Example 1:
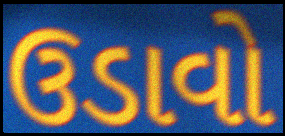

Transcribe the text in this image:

ઉડાવો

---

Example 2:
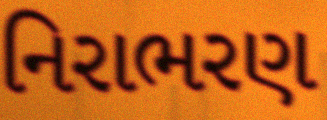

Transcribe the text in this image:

નિરાભરણ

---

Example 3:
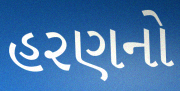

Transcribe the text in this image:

હરણનો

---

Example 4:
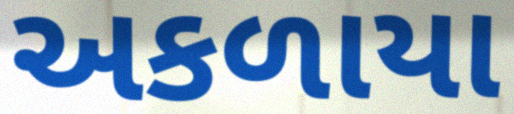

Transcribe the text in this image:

અકળાયા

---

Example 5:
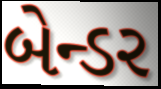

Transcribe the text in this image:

બેન્ડર